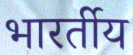
भारर्तीय